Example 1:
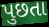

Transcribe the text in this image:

પુછતા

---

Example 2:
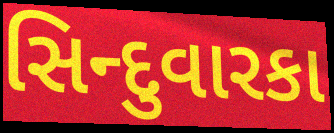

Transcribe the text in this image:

સિન્દુવારકા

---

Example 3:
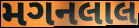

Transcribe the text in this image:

મગનલાલ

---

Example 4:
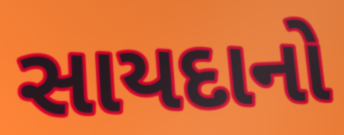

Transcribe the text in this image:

સાયદાનો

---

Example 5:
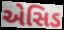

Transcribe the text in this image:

એસિડ